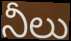
నీలు